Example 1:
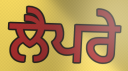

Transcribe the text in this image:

ਲੈਪਰੇ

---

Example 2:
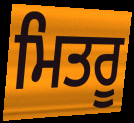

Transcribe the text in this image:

ਮਿਤਰੂ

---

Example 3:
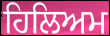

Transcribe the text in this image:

ਹਿਲਿਅਮ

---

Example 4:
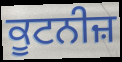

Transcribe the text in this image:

ਕੂਟਨੀਜ਼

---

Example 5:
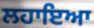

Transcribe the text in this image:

ਲਹਾਇਆ